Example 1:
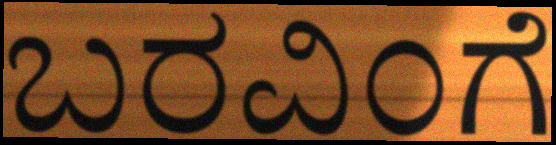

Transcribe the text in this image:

ಬರವಿಂಗೆ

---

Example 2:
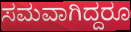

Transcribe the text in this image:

ಸಮವಾಗಿದ್ದರೂ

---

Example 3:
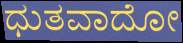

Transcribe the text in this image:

ಧುತವಾದೋ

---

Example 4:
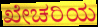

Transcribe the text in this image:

ಖೇಚರಿಯ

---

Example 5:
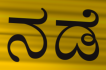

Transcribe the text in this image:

ನಡೆ